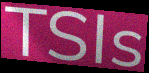
TSIs